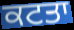
ਕਟਤਾ